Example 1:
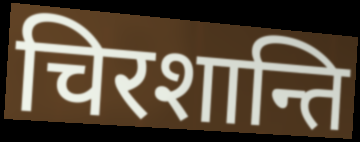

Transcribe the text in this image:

चिरशान्ति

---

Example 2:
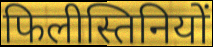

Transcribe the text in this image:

फिलीस्तिनियों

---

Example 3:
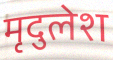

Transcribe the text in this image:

मृदुलेश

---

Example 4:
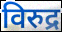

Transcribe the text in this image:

विरुद्र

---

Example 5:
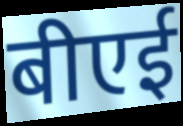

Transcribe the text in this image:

बीएई